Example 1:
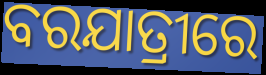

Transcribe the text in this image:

ବରଯାତ୍ରୀରେ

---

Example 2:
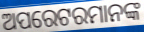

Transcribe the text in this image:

ଅପରେଟରମାନଙ୍କ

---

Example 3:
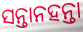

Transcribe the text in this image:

ସନ୍ତାନହନ୍ତା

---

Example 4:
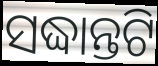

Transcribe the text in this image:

ସଦ୍ଧାନ୍ତଟି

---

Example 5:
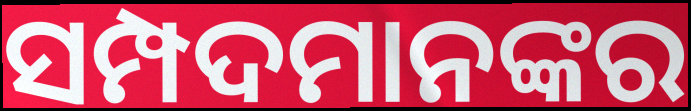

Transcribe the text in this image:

ସମ୍ପଦମାନଙ୍କର